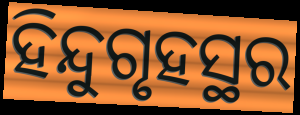
ହିନ୍ଦୁଗୃହସ୍ଥର